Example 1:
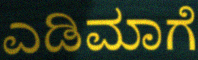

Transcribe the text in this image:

ಎಡಿಮಾಗೆ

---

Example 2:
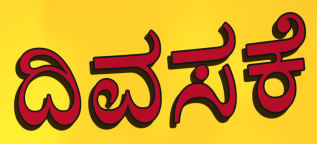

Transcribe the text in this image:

ದಿವಸಕೆ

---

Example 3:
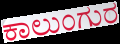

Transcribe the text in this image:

ಕಾಲುಂಗುರ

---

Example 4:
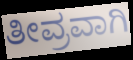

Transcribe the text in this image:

ತೀವ್ರವಾಗಿ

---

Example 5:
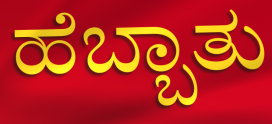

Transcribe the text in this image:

ಹೆಬ್ಬಾತು